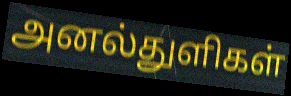
அனல்துளிகள்